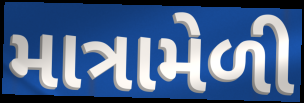
માત્રામેળી